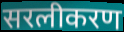
सरलीकरण